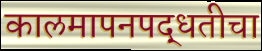
कालमापनपद्धतीचा